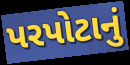
પરપોટાનું